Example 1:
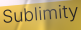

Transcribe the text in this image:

Sublimity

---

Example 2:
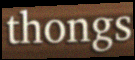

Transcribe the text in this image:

thongs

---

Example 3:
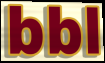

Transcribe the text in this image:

bbl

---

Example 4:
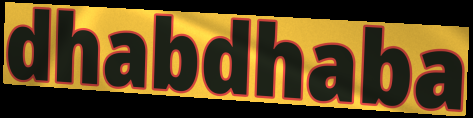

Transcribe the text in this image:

dhabdhaba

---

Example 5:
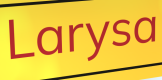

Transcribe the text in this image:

Larysa